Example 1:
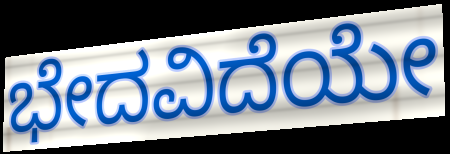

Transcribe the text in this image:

ಭೇದವಿದೆಯೇ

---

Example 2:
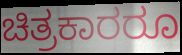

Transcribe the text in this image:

ಚಿತ್ರಕಾರರೂ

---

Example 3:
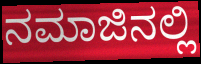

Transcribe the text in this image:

ನಮಾಜಿನಲ್ಲಿ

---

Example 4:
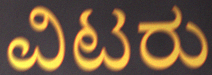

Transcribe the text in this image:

ವಿಟರು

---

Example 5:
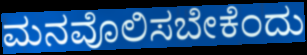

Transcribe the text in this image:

ಮನವೊಲಿಸಬೇಕೆಂದು